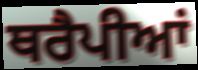
ਥਰੈਪੀਆਂ